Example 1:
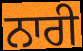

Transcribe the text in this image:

ਨਾਰੀ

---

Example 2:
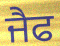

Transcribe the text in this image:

ਜੈਫ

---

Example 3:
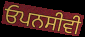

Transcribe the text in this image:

ਓਪਨਸੀਵੀ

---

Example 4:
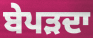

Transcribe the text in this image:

ਬੇਪੜਦਾ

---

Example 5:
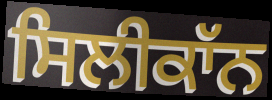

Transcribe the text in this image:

ਸਿਲੀਕਾੱਨ